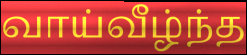
வாய்வீழ்ந்த